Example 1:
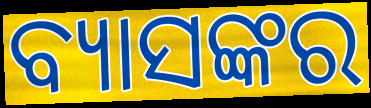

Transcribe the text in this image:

ବ୍ୟାସଙ୍କର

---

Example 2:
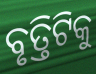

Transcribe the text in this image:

ବୃତ୍ତିଟିକୁ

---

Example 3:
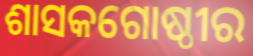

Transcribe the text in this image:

ଶାସକଗୋଷ୍ଠୀର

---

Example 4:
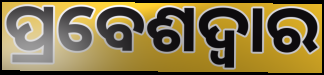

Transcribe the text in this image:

ପ୍ରବେଶଦ୍ଵାର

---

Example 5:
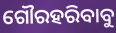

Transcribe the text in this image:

ଗୌରହରିବାବୁ